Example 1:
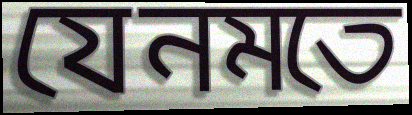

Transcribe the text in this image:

যেনমতে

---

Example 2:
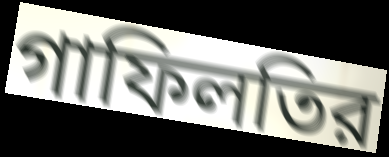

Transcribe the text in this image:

গাফিলতির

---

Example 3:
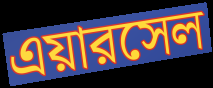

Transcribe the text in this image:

এয়ারসেল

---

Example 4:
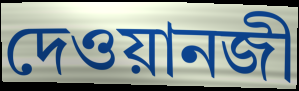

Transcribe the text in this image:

দেওয়ানজী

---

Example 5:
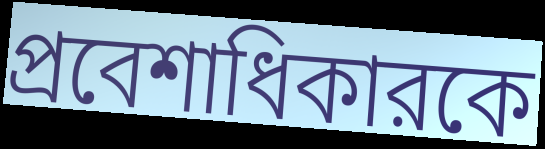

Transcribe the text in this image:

প্রবেশাধিকারকে